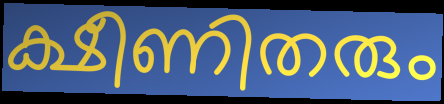
ക്ഷീണിതരും